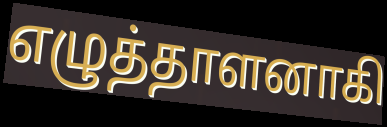
எழுத்தாளனாகி